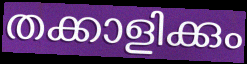
തക്കാളിക്കും